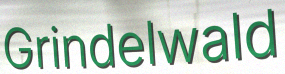
Grindelwald